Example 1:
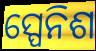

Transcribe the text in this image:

ସ୍ପେନିଶ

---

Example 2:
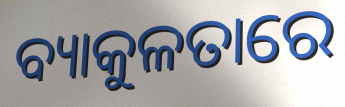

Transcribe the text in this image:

ବ୍ୟାକୁଳତାରେ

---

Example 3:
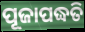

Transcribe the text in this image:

ପୂଜାପଦ୍ଧତି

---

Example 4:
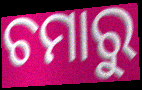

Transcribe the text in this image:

ଚମାରୁ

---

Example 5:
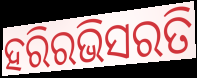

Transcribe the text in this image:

ହରିରଭିସରତି